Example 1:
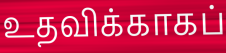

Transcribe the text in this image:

உதவிக்காகப்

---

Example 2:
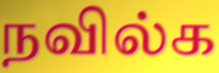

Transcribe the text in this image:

நவில்க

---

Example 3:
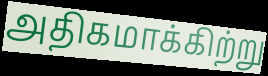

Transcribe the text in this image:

அதிகமாக்கிற்று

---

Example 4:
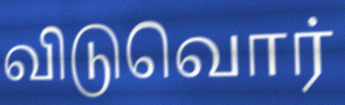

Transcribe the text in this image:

விடுவொர்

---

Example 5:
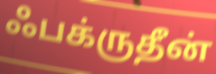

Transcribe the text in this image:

ஃபக்ருதீன்